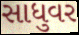
સાધુવર